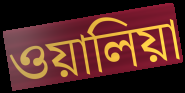
ওয়ালিয়া